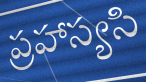
ప్రహాస్యసి